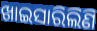
ଖାଇସାରିଲିଣି